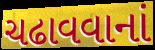
ચઢાવવાનાં